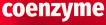
coenzyme